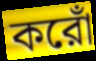
করোঁ